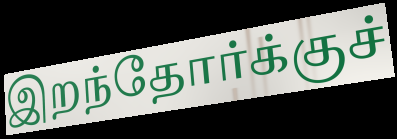
இறந்தோர்க்குச்